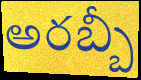
అరబ్బీ